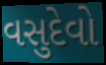
વસુદેવો